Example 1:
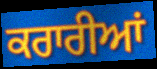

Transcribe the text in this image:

ਕਰਾਰੀਆਂ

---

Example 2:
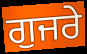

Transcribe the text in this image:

ਗੁਜਰੇ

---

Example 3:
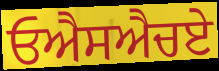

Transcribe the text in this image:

ਓਐਸਐਚਏ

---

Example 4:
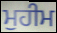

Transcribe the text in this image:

ਮੁਹੀਮ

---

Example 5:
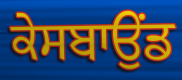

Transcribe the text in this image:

ਕੇਸਬਾਉਂਡ